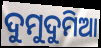
ଦୁମୁଦୁମିଆ